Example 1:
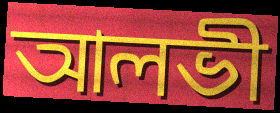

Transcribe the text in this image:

আলভী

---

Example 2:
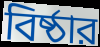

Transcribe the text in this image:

বিষ্ঠার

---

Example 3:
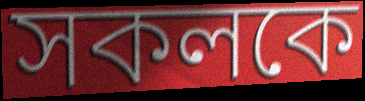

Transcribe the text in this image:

সকলকে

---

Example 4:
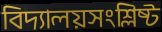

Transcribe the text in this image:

বিদ্যালয়সংশ্লিষ্ট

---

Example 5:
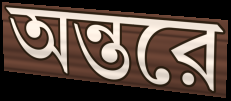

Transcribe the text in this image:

অন্তরে